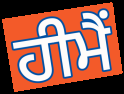
ਹੀਮੈਂ